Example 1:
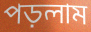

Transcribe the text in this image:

পড়লাম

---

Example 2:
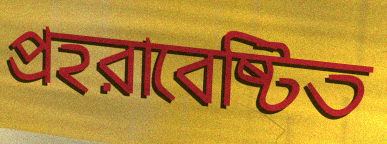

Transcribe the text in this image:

প্রহরাবেষ্টিত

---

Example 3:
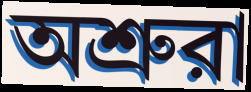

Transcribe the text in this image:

অশ্রুরা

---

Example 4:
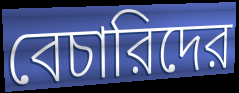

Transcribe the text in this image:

বেচারিদের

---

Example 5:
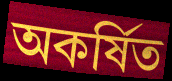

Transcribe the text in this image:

অকর্ষিত